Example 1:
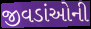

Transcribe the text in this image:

જીવડાંઓની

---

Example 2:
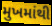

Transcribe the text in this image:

મુખમાંથી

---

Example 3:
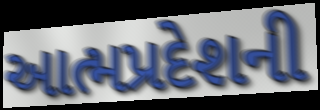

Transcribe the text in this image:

આત્મપ્રદેશની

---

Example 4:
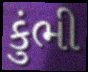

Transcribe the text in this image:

કુંભી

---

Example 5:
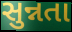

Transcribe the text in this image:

સુન્નતા